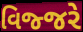
વિજ્જરે